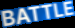
BATTLE